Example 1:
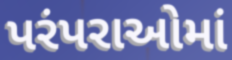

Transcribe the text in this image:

પરંપરાઓમાં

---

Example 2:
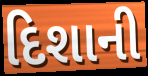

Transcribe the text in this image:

દિશાની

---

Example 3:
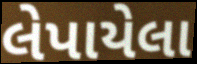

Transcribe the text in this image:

લેપાયેલા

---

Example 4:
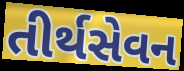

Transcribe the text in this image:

તીર્થસેવન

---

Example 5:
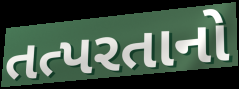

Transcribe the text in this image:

તત્પરતાનો